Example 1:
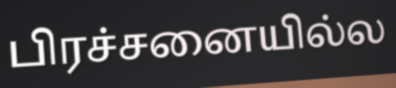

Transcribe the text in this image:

பிரச்சனையில்ல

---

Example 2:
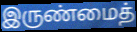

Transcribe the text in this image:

இருண்மைத்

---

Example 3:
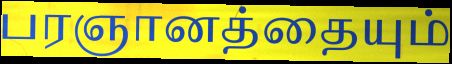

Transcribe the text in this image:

பரஞானத்தையும்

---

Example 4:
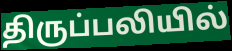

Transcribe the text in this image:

திருப்பலியில்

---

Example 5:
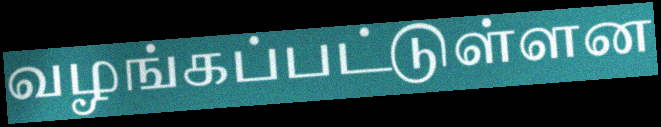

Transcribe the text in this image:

வழங்கப்பட்டுள்ளன